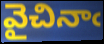
వైచినాఁ